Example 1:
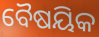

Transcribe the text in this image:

ବୈଷୟିକ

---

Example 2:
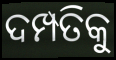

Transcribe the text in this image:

ଦମ୍ପତିକୁ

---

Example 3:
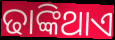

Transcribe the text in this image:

ଢାଙ୍କିଥାଏ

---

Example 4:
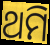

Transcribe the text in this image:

ଥମି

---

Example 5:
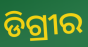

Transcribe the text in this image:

ଡିଗ୍ରୀର